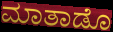
ಮಾತಾಡೊ